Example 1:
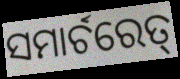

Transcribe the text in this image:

ସମାର୍ଚରେତ୍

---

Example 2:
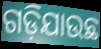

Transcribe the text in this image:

ଗଡ଼ିଯାଉଛ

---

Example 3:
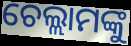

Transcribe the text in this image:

ଚେଲ୍ଲାମଙ୍କୁ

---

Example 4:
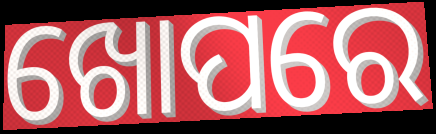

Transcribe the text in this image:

ଖୋପରେ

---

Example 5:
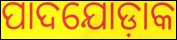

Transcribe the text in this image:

ପାଦଯୋଡ଼ାକ